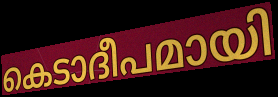
കെടാദീപമായി